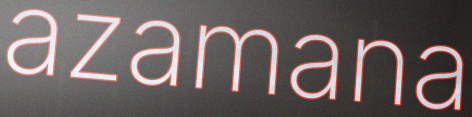
azamana